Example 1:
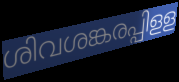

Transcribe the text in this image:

ശിവശങ്കരപ്പിളള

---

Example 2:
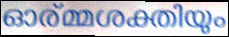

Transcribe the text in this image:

ഓര്മ്മശക്തിയും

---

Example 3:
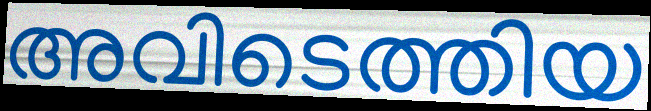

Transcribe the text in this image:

അവിടെത്തിയ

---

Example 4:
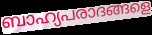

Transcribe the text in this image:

ബാഹ്യപരാദങ്ങളെ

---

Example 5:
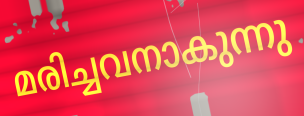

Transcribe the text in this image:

മരിച്ചവനാകുന്നു